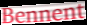
Bennent